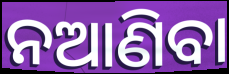
ନଆଣିବା